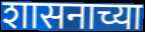
शासनाच्या